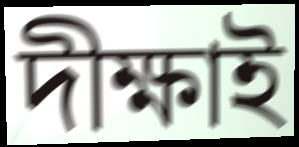
দীক্ষাই